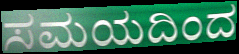
ಸಮಯದಿಂದ